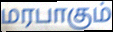
மரபாகும்